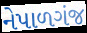
નેપાળગંજ